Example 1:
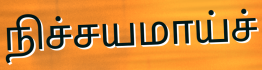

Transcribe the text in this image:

நிச்சயமாய்ச்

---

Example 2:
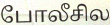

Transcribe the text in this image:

போலீசில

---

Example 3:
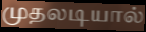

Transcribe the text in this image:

முதலடியால்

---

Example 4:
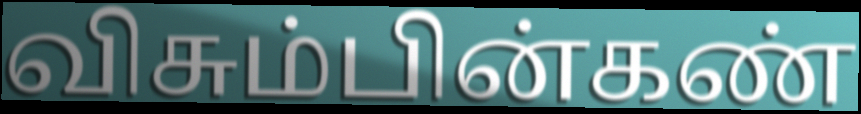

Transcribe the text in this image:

விசும்பின்கண்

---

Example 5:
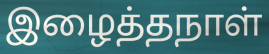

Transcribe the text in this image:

இழைத்தநாள்